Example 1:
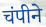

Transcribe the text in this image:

चंपीने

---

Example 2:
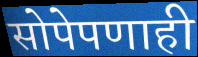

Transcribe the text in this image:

सोपेपणाही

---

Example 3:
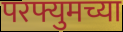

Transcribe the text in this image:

परफ्युमच्या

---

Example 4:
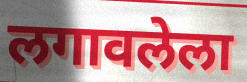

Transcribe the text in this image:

लगावलेला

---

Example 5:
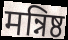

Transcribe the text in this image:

मन्निष्ठ